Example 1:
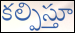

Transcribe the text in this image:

కల్పిస్తూ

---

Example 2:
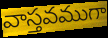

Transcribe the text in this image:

వాస్తవముగా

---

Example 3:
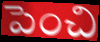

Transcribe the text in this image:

పెంచి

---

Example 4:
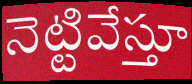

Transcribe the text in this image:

నెట్టివేస్తూ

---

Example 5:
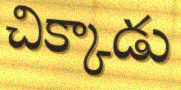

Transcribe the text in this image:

చిక్కాడు